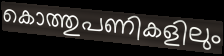
കൊത്തുപണികളിലും